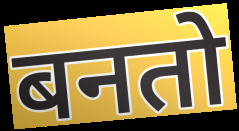
बनतो